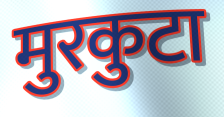
मुरकुटा